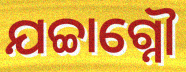
ଯଚ୍ଚାଗ୍ନୌ